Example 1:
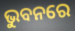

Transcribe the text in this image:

ଭୁବନରେ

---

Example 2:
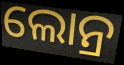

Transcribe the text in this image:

ଲୋନ୍ର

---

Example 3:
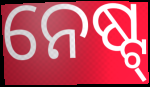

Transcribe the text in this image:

ନେଷ୍ଟ୍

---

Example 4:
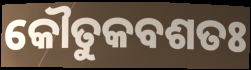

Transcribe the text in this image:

କୌତୁକବଶତଃ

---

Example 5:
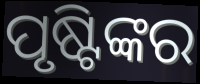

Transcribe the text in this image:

ପୃଷ୍ଟିଙ୍କର